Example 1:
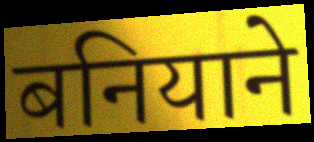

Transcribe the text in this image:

बनियाने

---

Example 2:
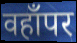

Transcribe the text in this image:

वहाँपर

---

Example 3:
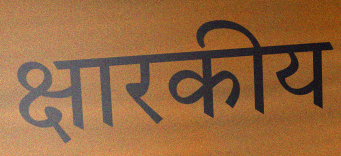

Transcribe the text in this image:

क्षारकीय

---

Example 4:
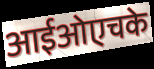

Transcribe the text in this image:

आईओएचके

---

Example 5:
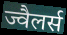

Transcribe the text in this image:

ज्वैलर्स